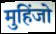
मुहिंजो